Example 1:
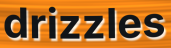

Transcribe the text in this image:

drizzles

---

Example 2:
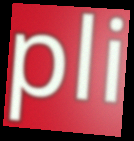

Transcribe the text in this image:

pli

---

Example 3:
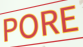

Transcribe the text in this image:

PORE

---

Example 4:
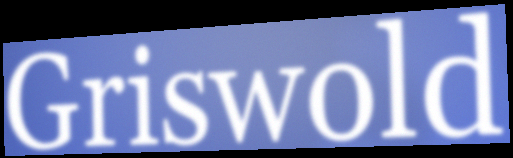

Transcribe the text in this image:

Griswold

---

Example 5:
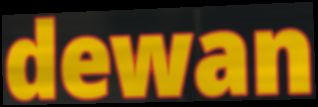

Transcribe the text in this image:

dewan